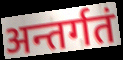
अन्तर्गतं